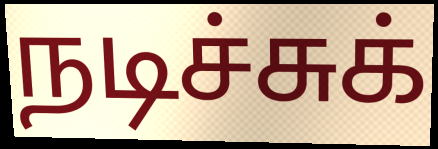
நடிச்சுக்